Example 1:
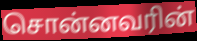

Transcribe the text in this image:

சொன்னவரின்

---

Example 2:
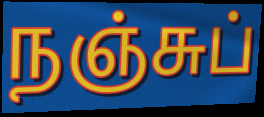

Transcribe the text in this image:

நஞ்சுப்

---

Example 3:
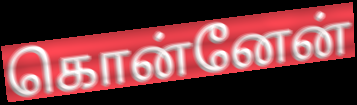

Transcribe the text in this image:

கொன்னேன்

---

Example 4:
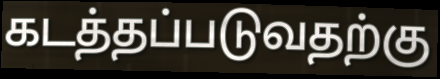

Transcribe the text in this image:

கடத்தப்படுவதற்கு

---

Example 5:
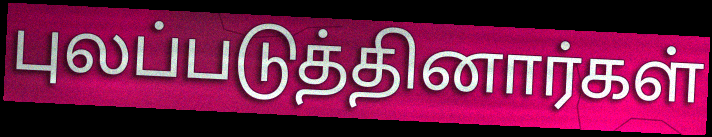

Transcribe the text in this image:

புலப்படுத்தினார்கள்